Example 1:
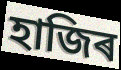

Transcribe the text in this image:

হাজিৰ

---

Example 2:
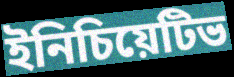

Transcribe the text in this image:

ইনিচিয়েটিভ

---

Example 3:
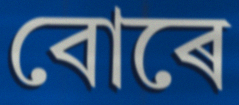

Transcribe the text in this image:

বোৰে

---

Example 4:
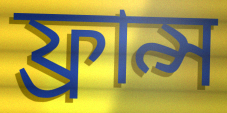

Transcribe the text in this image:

ফ্ৰান্স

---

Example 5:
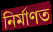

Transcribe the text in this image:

নিৰ্মাণত